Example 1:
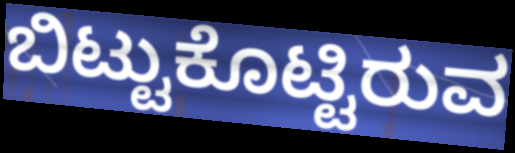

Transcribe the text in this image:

ಬಿಟ್ಟುಕೊಟ್ಟಿರುವ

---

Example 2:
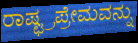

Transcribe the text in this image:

ರಾಷ್ಟ್ರಪ್ರೇಮವನ್ನು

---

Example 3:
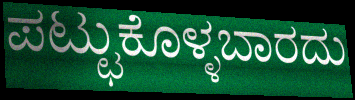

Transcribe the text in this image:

ಪಟ್ಟುಕೊಳ್ಳಬಾರದು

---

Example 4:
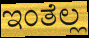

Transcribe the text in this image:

ಇಂತೆಲ್ಲ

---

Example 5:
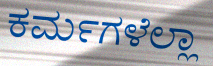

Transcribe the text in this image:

ಕರ್ಮಗಳೆಲ್ಲಾ